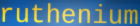
ruthenium